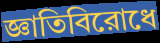
জ্ঞাতিবিরোধে